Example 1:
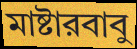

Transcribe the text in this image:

মাষ্টারবাবু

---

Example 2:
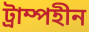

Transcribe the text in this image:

ট্রাম্পহীন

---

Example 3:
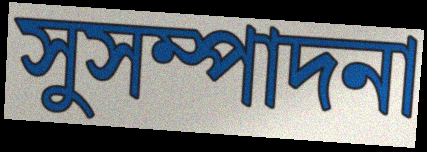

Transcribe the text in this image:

সুসম্পাদনা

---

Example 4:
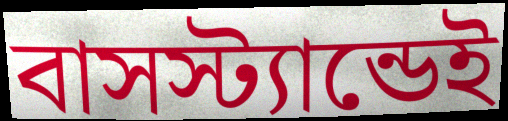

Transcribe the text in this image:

বাসস্ট্যান্ডেই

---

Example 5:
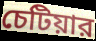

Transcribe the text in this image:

চেটিয়ার